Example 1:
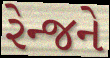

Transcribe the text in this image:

રેન્જને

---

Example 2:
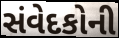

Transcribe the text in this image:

સંવેદકોની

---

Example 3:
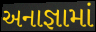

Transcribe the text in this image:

અનાજ્ઞામાં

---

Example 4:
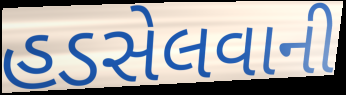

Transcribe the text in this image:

હડસેલવાની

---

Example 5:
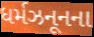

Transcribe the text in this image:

ધર્મઝનૂનના